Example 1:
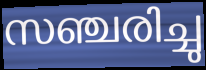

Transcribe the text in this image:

സഞ്ചരിച്ചു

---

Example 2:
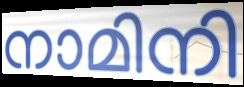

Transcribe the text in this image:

നാമിനി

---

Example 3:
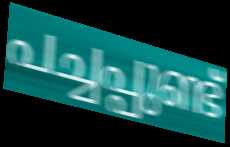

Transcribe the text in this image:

പച്ചപ്പുണ്ട്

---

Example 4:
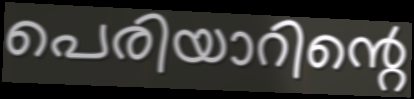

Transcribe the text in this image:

പെരിയാറിന്റെ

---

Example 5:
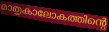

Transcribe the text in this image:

മാതൃകാലോകത്തിന്റെ